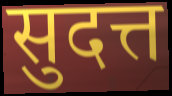
सुदत्त